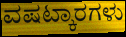
ವಷಟ್ಕಾರಗಳು